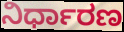
ನಿರ್ಧಾರಣ